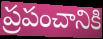
ప్రపంచానికి